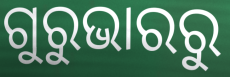
ଗୁରୁଭାରରୁ